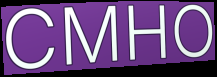
CMHO